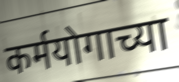
कर्मयोगाच्या